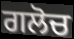
ਗਲੋਚ